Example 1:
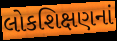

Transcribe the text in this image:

લોકશિક્ષણનાં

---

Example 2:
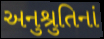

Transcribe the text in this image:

અનુશ્રુતિનાં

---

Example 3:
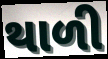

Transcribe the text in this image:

થાળી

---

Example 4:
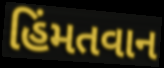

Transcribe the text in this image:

હિંમતવાન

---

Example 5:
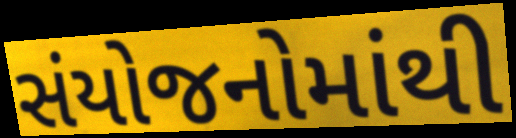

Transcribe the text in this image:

સંયોજનોમાંથી